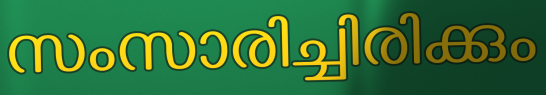
സംസാരിച്ചിരിക്കും